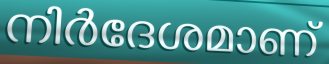
നിർദേശമാണ്